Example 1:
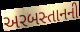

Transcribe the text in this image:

અરબસ્તાનની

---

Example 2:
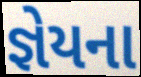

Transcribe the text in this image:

જ્ઞેયના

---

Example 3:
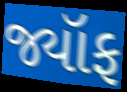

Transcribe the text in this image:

જ્યૉફ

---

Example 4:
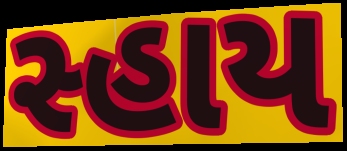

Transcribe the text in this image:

સ્હાય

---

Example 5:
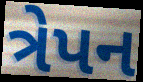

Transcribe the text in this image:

ત્રેપન